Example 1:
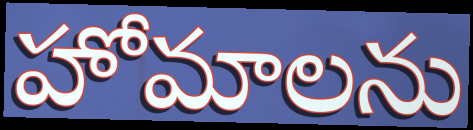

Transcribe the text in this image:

హోమాలను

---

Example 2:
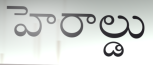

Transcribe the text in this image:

హెరాల్డు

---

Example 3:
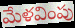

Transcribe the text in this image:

మేళవింపు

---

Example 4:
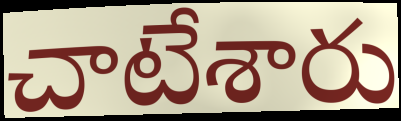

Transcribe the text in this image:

చాటేశారు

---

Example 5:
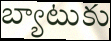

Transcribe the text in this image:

బ్యాటుకు